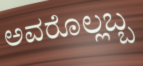
ಅವರೊಲ್ಲಬ್ಬ